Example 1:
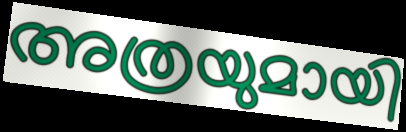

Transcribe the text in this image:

അത്രയുമായി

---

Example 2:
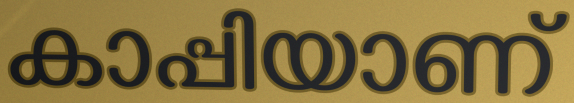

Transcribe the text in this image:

കാപ്പിയാണ്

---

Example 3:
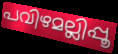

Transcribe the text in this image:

പവിഴമല്ലിപ്പൂ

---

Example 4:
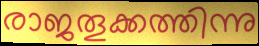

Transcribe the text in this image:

രാജതൂക്കത്തിന്നു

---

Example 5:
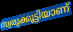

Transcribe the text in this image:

സ്വരുക്കൂട്ടിയാണ്